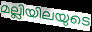
മല്ലിയിലയുടെ